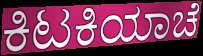
ಕಿಟಕಿಯಾಚೆ